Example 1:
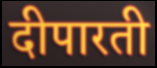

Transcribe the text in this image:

दीपारती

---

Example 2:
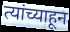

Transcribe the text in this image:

त्यांच्याहून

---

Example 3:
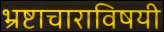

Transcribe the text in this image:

भ्रष्टाचाराविषयी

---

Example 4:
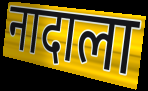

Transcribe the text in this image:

नादाला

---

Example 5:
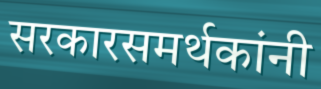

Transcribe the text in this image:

सरकारसमर्थकांनी